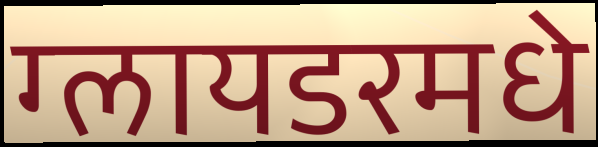
ग्लायडरमधे